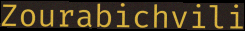
Zourabichvili